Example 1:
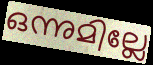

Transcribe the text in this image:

ഒന്നുമില്ലേ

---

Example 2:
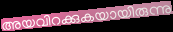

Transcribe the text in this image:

അയവിറക്കുകയായിരുന്നു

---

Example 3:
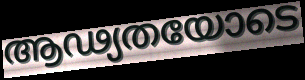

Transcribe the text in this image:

ആഢ്യതയോടെ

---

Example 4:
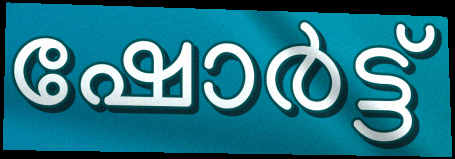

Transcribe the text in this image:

ഷോർട്ട്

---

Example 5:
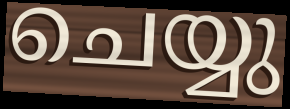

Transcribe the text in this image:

ചെയ്യു